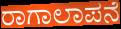
ರಾಗಾಲಾಪನೆ